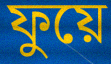
ফুয়ে